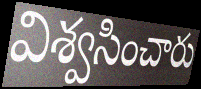
విశ్వసించారు